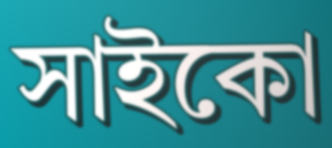
সাইকো